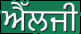
ਐੱਲਜੀ